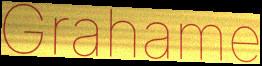
Grahame